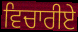
ਵਿਚਾਰੀਏ